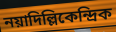
নয়াদিল্লিকেন্দ্রিক